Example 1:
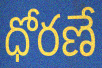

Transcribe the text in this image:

ధోరణే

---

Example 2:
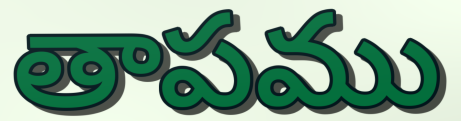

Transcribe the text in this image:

తాపము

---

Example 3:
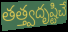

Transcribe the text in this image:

తత్త్వదృష్టిచే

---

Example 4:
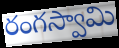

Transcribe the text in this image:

రంగస్వామి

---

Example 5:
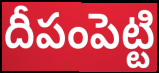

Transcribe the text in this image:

దీపంపెట్టి